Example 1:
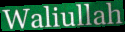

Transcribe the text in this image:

Waliullah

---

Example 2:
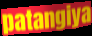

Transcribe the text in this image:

patangiya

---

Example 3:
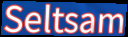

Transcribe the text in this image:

Seltsam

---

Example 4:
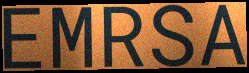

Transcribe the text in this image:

EMRSA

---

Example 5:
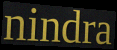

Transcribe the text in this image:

nindra